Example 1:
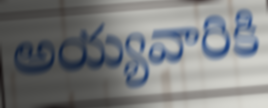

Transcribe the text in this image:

అయ్యవారికి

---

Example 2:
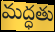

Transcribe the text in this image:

మద్ధతు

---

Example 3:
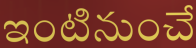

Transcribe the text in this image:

ఇంటినుంచే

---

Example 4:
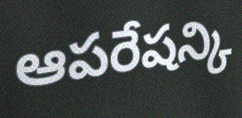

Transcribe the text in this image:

ఆపరేషన్కి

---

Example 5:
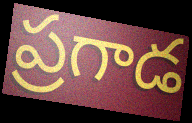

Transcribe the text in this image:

ప్రగాడ